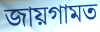
জায়গামত